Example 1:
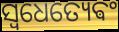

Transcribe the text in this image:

ସ୍ଵଧେତ୍ଯେଵଂ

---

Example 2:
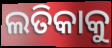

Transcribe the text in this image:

ଲତିକାକୁ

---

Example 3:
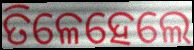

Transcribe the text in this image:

ତିଳେହେଲେ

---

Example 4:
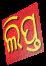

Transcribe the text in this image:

ଲିପ୍ତ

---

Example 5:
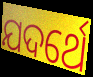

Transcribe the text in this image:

ଯଦର୍ଥେ